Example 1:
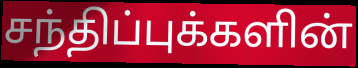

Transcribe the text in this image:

சந்திப்புக்களின்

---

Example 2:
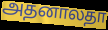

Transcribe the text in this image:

அதனாலதா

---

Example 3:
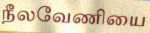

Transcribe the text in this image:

நீலவேணியை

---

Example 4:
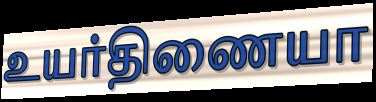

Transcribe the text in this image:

உயர்திணையா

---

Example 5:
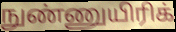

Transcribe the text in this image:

நுண்ணுயிரிக்